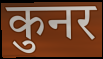
कुनर